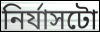
নিৰ্যাসটো